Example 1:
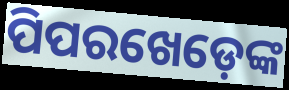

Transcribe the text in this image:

ପିପରଖେଡ଼େଙ୍କ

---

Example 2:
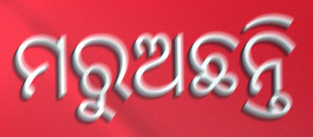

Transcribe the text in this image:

ମରୁଅଛନ୍ତି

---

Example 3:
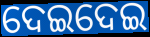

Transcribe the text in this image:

ଦେଇଦେଇ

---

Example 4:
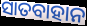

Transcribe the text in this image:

ସାତବାହାନ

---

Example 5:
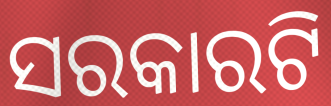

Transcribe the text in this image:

ସରକାରଟି